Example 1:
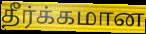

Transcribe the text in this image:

தீர்க்கமான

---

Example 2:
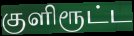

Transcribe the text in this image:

குளிரூட்ட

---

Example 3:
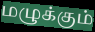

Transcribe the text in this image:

மழுக்கும்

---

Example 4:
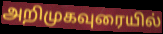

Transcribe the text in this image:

அறிமுகவுரையில்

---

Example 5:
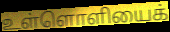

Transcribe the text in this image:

உள்ளொளியைக்